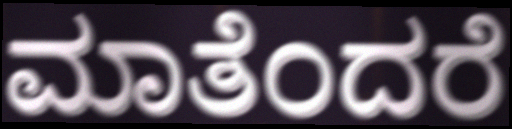
ಮಾತೆಂದರೆ